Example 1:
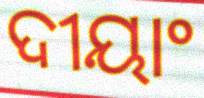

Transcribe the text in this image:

ଦୀୟାଂ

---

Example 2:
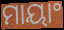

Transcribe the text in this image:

ମାୟାଂ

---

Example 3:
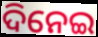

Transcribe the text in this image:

ଦିନେଇ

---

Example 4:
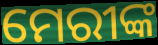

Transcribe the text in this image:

ମେରୀଙ୍କ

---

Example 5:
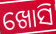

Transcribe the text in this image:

ଖୋସି